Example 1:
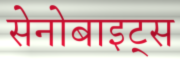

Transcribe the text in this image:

सेनोबाइट्स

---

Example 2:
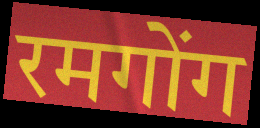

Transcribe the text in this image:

रमगोंग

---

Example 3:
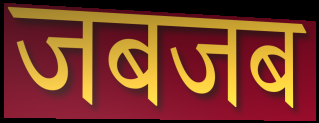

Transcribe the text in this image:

जबजब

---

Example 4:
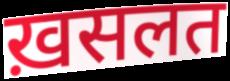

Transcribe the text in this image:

ख़सलत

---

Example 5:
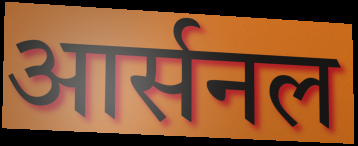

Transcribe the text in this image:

आर्सनल